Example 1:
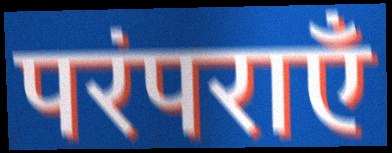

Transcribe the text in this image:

परंपराएँ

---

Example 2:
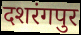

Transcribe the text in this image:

दशरंगपुर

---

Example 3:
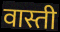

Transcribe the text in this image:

वास्ती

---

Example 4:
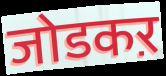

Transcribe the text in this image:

जोडकऱ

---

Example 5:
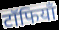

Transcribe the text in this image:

टॉफियाँ